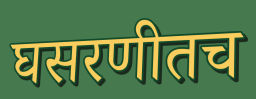
घसरणीतच